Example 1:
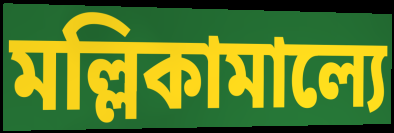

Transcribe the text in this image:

মল্লিকামাল্যে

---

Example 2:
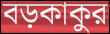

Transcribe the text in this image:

বড়কাকুর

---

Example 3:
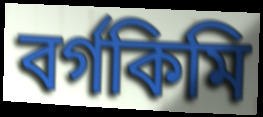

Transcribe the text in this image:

বর্গকিমি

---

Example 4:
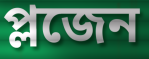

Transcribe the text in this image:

প্লজেন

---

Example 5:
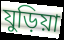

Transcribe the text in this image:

যুড়িয়া